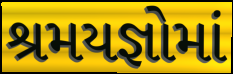
શ્રમયજ્ઞોમાં